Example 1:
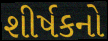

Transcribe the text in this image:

શીર્ષકનો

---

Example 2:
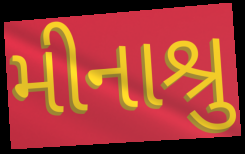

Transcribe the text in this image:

મીનાશ્રુ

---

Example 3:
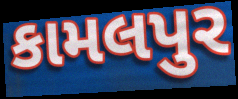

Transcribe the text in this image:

કામલપુર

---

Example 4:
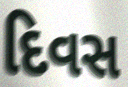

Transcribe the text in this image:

દિવસ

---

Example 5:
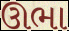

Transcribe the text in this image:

ઊભા